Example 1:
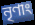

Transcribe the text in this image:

নৃণাং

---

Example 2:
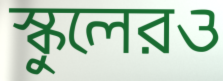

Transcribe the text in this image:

স্কুলেরও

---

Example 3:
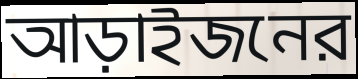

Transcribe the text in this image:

আড়াইজনের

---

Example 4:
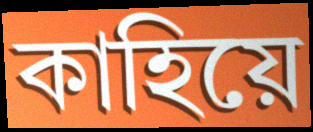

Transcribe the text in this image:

কাহিয়ে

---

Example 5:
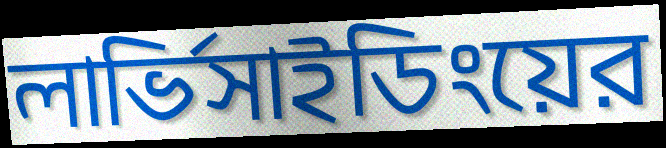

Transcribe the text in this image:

লার্ভিসাইডিংয়ের